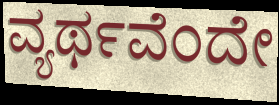
ವ್ಯರ್ಥವೆಂದೇ